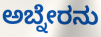
ಅಬ್ನೇರನು